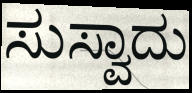
ಸುಸ್ವಾದು